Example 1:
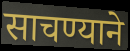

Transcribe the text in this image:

साचण्याने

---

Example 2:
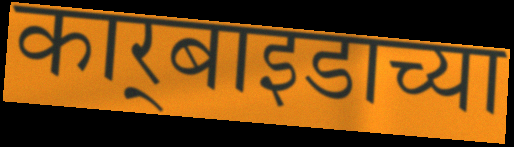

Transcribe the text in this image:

कार्बाइडाच्या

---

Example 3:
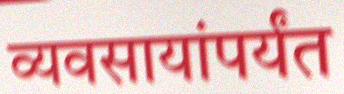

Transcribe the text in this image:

व्यवसायांपर्यंत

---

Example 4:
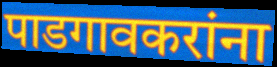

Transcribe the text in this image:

पाडगावकरांना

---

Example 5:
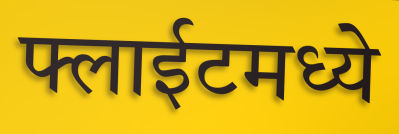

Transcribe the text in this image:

फ्लाईटमध्ये